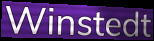
Winstedt